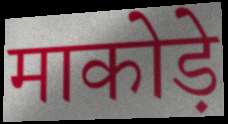
माकोड़े